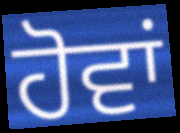
ਹੋਵਾਂ